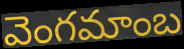
వెంగమాంబ